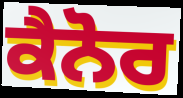
ਕੈਨੋਰ